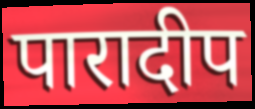
पारादीप